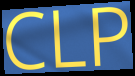
CLP